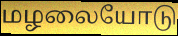
மழலையோடு